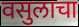
वसुलाचा